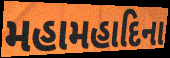
મહામહાદિના